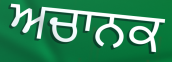
ਅਚਾਨਕ